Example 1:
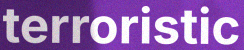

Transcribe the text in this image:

terroristic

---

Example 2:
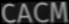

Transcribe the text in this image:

CACM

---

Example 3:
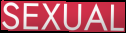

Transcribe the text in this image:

SEXUAL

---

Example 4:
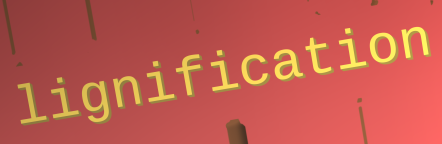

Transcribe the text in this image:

lignification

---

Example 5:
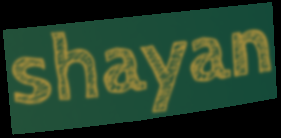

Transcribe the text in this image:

shayan